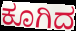
ಕೂಗಿದ